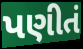
પણીતં